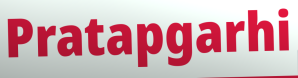
Pratapgarhi